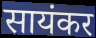
सायंकर